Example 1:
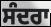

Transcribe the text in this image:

ਸੰਦਰਾ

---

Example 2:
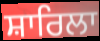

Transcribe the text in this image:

ਸ਼ਾਰਿਲਾ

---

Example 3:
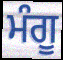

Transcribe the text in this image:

ਮੰਗੂ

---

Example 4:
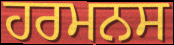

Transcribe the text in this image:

ਹਰਮਨਸ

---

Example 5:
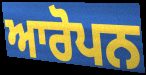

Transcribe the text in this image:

ਆਰੋਪਨ